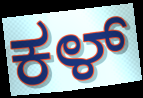
ಕಳ್